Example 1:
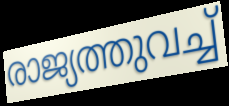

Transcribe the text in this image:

രാജ്യത്തുവച്ച്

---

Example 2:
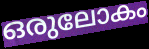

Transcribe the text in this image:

ഒരുലോകം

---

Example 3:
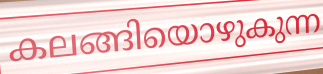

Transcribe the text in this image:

കലങ്ങിയൊഴുകുന്ന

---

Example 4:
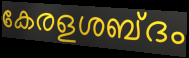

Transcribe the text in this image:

കേരളശബ്ദം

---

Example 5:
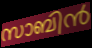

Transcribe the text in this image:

സാബിൻ